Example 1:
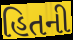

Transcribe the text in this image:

હિતની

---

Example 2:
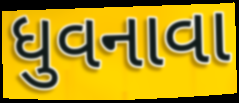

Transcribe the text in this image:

ધુવનાવા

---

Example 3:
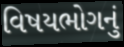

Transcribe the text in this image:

વિષયભોગનું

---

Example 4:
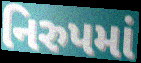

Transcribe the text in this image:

નિરુપમાં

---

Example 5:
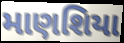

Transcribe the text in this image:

માણશિયા